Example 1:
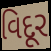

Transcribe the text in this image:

વિદૂર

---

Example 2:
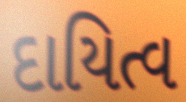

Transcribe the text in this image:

દાયિત્વ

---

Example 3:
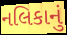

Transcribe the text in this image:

નલિકાનું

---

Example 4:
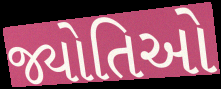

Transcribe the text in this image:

જ્યોતિઓ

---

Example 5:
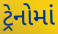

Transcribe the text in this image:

ટ્રેનોમાં